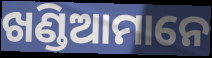
ଖଣ୍ଡିଆମାନେ